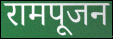
रामपूजन